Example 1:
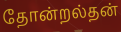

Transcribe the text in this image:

தோன்றல்தன்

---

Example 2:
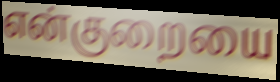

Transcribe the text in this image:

என்குறையை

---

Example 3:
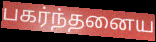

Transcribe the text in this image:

பகர்ந்தனைய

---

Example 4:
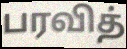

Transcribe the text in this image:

பரவித்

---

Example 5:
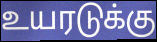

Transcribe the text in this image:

உயரடுக்கு